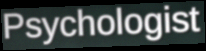
Psychologist